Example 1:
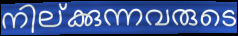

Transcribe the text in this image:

നില്ക്കുന്നവരുടെ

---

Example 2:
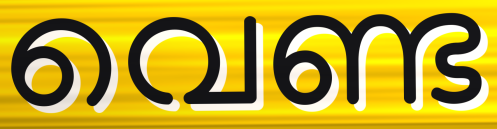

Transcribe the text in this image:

വെണ്ട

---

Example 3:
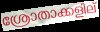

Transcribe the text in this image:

ശ്രോതാക്കളില്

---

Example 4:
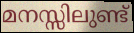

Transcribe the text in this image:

മനസ്സിലുണ്ട്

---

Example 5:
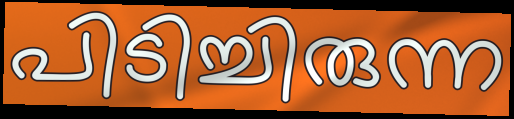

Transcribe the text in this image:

പിടിച്ചിരുന്ന